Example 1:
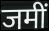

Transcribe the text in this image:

जमीं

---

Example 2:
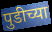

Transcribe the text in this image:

पुडीच्या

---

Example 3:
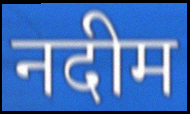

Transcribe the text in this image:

नदीम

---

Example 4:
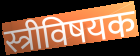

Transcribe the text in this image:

स्त्रीविषयक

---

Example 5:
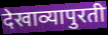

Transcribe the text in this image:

देखाव्यापुरती